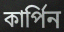
কার্পিন